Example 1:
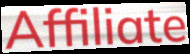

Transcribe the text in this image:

Affiliate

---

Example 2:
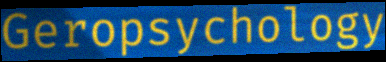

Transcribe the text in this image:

Geropsychology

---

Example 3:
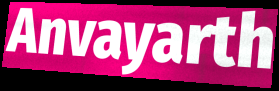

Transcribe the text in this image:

Anvayarth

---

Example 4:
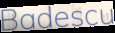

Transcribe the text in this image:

Badescu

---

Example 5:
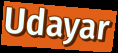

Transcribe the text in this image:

Udayar